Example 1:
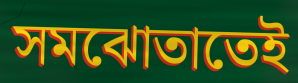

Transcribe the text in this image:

সমঝোতাতেই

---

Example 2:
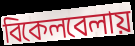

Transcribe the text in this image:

বিকেলবেলায়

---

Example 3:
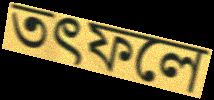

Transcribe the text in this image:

তৎফলে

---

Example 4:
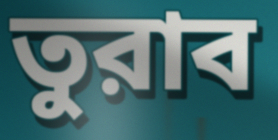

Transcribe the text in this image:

তুরাব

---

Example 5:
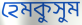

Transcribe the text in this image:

হেমকুসুম